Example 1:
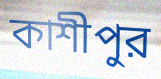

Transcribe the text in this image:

কাশীপুর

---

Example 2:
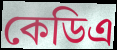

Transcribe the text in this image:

কেডিএ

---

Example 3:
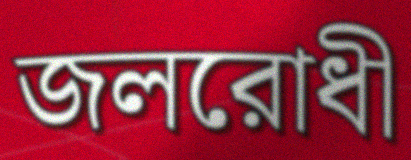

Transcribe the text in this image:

জলরোধী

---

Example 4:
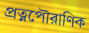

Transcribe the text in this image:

প্রত্নপৌরাণিক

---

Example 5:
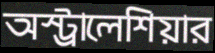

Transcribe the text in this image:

অস্ট্রালেশিয়ার